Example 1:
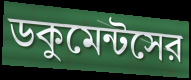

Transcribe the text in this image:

ডকুমেন্টসের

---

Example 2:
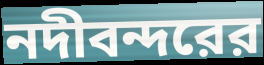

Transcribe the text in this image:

নদীবন্দরের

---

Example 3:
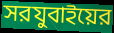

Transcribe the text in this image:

সরযুবাইয়ের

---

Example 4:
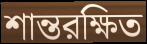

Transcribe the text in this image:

শান্তরক্ষিত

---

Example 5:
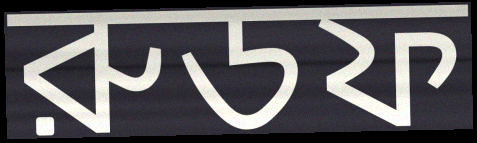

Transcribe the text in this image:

রুডফ